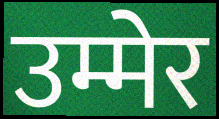
उम्मेर